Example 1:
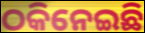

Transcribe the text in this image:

ଠକିନେଇଛି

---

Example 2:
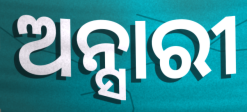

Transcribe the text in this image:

ଅନ୍ସାରୀ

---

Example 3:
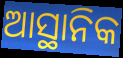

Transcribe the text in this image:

ଆସ୍ଥାନିକ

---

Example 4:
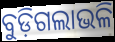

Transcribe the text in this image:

ବୁଡ଼ିଗଲାଭଳି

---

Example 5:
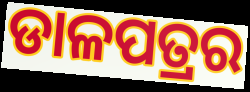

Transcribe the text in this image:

ଡାଳପତ୍ରର